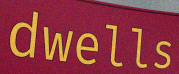
dwells